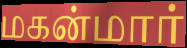
மகன்மார்